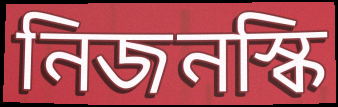
নিজনস্কি